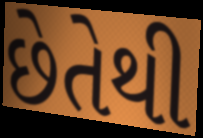
છેતેથી